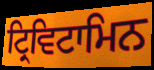
ਟ੍ਰਿਵਿਟਾਮਿਨ